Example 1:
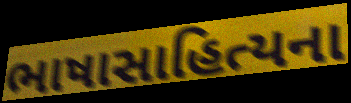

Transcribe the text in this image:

ભાષાસાહિત્યના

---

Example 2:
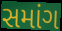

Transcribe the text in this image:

સમાંગ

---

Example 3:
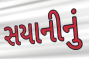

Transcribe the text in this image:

સયાનીનું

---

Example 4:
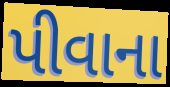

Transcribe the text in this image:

પીવાના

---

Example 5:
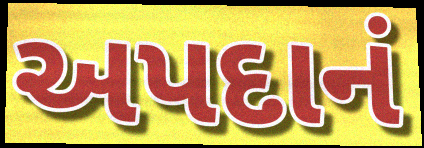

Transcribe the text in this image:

અપદાનં